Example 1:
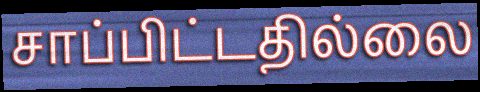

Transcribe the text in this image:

சாப்பிட்டதில்லை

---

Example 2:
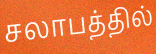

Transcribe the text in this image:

சலாபத்தில்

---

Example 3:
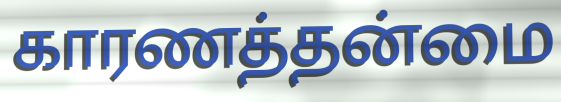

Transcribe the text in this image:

காரணத்தன்மை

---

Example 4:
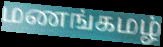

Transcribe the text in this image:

மணங்கமழ்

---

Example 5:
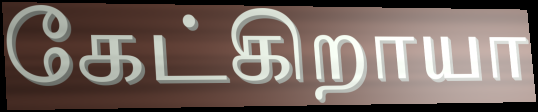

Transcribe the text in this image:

கேட்கிறாயா